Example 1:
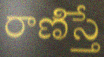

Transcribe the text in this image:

రాణిస్తే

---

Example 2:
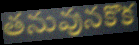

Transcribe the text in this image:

తనువునకొక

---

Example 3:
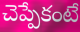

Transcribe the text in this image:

చెప్పేకంటే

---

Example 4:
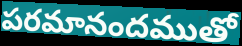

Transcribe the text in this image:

పరమానందముతో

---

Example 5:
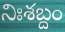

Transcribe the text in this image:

నిఃశబ్దం